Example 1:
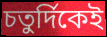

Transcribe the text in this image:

চতুর্দিকেই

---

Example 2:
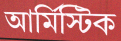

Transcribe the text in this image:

আর্মিস্টিক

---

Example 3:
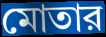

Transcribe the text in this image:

মোতার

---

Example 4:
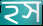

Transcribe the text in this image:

হস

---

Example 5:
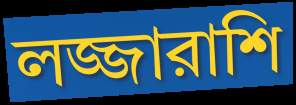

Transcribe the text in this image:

লজ্জারাশি